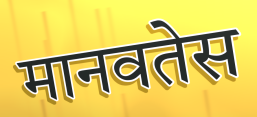
मानवतेस